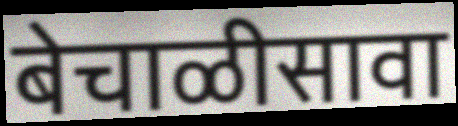
बेचाळीसावा